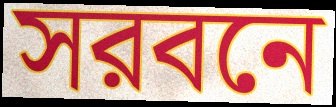
সরবনে